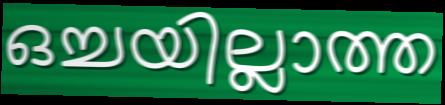
ഒച്ചയില്ലാത്ത